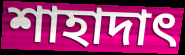
শাহাদাৎ